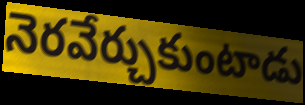
నెరవేర్చుకుంటాడు